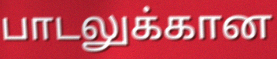
பாடலுக்கான